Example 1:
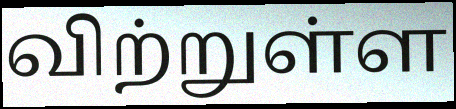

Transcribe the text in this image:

விற்றுள்ள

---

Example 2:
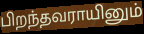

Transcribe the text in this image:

பிறந்தவராயினும்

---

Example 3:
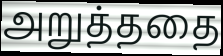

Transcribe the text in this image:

அறுத்ததை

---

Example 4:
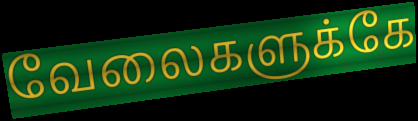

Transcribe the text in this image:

வேலைகளுக்கே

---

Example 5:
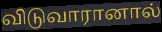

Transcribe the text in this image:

விடுவாரானால்